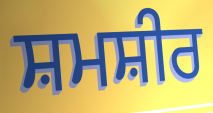
ਸ਼ਮਸ਼ੀਰ